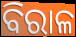
ବିରାଳ